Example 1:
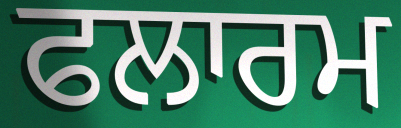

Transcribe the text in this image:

ਫਲਾਰਮ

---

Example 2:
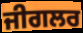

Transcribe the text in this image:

ਜੀਗਲਰ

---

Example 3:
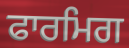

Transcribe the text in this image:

ਫਾਰਮਿਗ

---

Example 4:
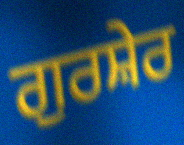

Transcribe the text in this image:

ਗੁਰਸ਼ੇਰ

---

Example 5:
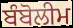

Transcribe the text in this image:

ਬੰਬੋਲੀਮ